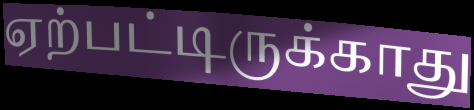
ஏற்பட்டிருக்காது